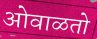
ओवाळतो